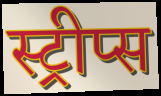
स्ट्रीप्स